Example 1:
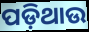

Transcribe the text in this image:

ପଡ଼ିଥାଉ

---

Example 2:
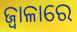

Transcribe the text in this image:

ଜ୍ୱାଳାରେ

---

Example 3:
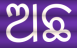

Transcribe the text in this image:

ଅଛ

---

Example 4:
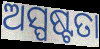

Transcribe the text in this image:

ଅସ୍ପଷ୍ଟତା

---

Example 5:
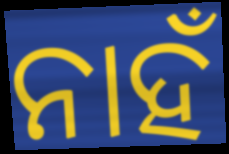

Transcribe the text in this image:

ନାହଁ